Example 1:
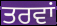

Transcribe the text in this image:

ਤਰਵਾਂ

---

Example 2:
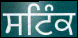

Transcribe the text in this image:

ਸਟਿੰਕ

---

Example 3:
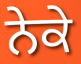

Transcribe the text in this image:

ਨੇਕੇ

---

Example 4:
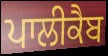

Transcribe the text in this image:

ਪਾਲੀਕੈਬ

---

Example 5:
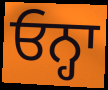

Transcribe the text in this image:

ਓਨ੍ਹਾ